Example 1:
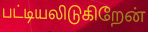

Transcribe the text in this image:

பட்டியலிடுகிறேன்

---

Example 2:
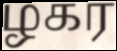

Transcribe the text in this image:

ழகர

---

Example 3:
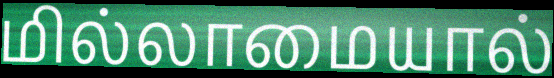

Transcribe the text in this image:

மில்லாமையால்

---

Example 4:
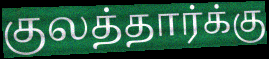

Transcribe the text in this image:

குலத்தார்க்கு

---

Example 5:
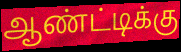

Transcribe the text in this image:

ஆண்ட்டிக்கு